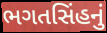
ભગતસિંહનું